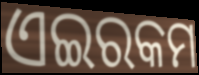
ଏଇରକମ